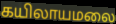
கயிலாயமலை